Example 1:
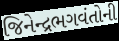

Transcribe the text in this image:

જિનેન્દ્રભગવંતોની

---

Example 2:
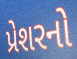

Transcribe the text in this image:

પ્રેશરનો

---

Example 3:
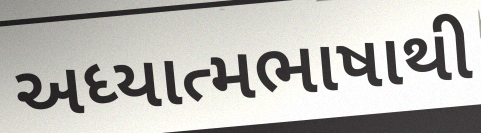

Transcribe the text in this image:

અધ્યાત્મભાષાથી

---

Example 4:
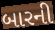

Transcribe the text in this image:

બારની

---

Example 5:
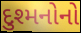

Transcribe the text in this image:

દુશ્મનોનો